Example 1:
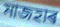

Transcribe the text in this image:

মাজহাৰ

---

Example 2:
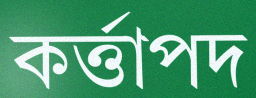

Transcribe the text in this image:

কৰ্ত্তাপদ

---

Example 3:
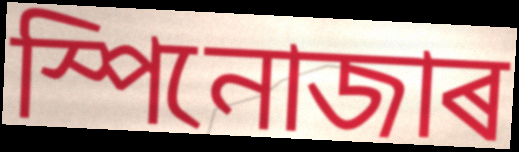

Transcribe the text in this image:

স্পিনোজাৰ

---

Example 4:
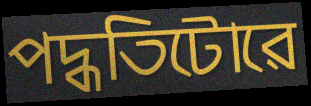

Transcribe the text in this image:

পদ্ধতিটোৱে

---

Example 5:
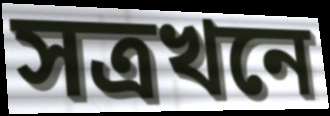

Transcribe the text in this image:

সত্ৰখনে